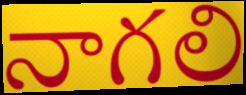
నాగలి